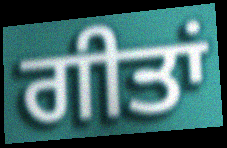
ਗੀਤਾਂ